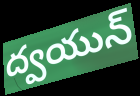
ద్వయున్